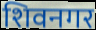
शिवनगर